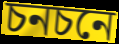
চনচনে